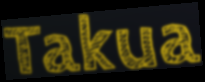
Takua